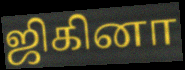
ஜிகினா